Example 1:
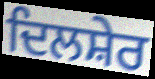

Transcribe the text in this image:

ਦਿਲਸ਼ੇਰ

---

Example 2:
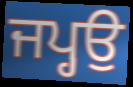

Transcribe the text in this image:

ਜਪ੍ਹਉ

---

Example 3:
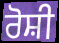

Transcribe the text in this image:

ਰੋਸ਼ੀ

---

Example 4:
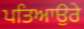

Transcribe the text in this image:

ਪਤਿਆਉਰੇ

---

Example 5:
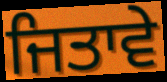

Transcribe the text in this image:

ਜਿਤਾਵੇ